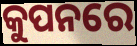
କୁପନରେ